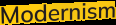
Modernism